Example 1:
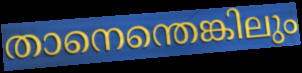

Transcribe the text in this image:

താനെന്തെങ്കിലും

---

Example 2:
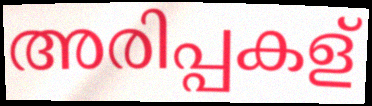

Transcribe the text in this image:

അരിപ്പകള്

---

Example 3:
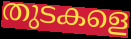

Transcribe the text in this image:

തുടകളെ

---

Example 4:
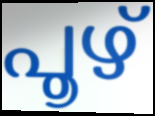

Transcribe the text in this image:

പൂഴ്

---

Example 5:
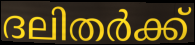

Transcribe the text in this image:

ദലിതർക്ക്